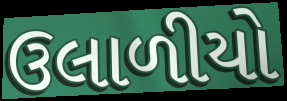
ઉલાળીયો